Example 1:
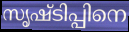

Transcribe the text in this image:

സൃഷ്ടിപ്പിനെ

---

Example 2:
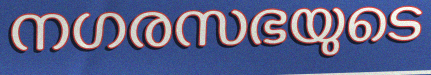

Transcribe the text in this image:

നഗരസഭയുടെ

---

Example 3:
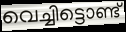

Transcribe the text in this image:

വെച്ചിട്ടൊണ്ട്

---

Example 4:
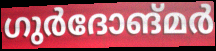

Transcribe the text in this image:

ഗുർദോങ്മർ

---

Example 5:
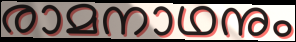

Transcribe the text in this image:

രാമനാഥനും